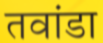
तवांडा